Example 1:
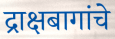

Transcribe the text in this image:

द्राक्षबागांचे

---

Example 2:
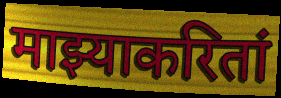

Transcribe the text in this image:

माझ्याकरितां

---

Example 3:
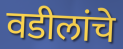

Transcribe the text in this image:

वडीलांचे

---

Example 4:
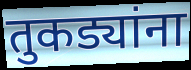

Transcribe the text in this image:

तुकड्यांना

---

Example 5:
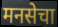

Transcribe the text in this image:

मनसेचा